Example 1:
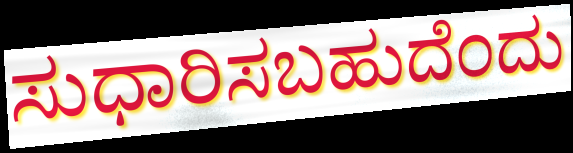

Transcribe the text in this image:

ಸುಧಾರಿಸಬಹುದೆಂದು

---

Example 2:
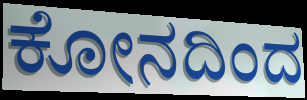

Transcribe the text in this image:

ಕೋನದಿಂದ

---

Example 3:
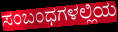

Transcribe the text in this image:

ಸಂಬಂಧಗಳಲ್ಲಿಯ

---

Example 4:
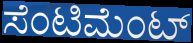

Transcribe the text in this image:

ಸೆಂಟಿಮೆಂಟ್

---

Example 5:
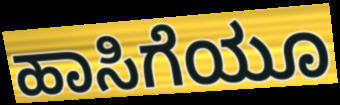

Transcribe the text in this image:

ಹಾಸಿಗೆಯೂ